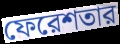
ফেরেশতার